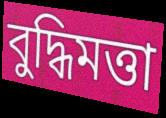
বুদ্ধিমত্তা